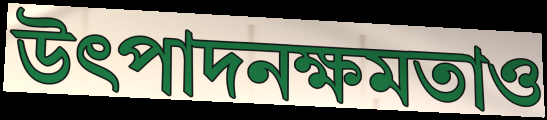
উৎপাদনক্ষমতাও